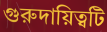
গুরুদায়িত্বটি